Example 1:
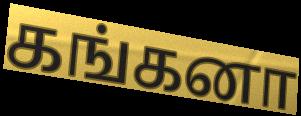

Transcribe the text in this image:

கங்கனா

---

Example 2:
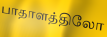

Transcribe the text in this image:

பாதாளத்திலோ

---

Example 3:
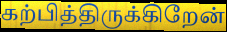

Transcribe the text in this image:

கற்பித்திருக்கிறேன்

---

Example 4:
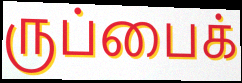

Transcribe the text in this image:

ருப்பைக்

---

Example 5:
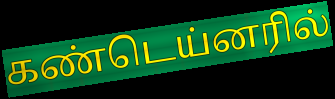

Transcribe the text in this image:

கண்டெய்னரில்